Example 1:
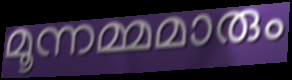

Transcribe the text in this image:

മൂന്നമ്മമാരും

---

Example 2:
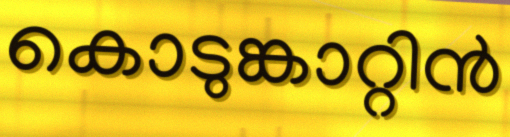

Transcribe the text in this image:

കൊടുങ്കാറ്റിൻ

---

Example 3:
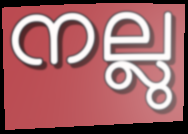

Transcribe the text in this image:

നല്ലു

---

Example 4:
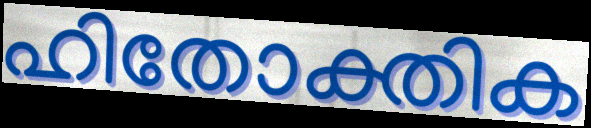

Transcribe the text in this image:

ഹിതോക്തിക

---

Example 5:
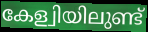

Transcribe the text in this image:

കേള്വിയിലുണ്ട്